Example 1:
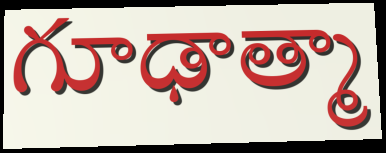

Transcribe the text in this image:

గూఢాత్మా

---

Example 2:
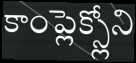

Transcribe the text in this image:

కాంప్లెక్స్లోని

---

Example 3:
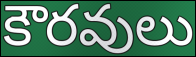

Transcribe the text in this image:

కౌరవులు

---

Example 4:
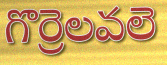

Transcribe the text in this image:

గొర్రెలవలె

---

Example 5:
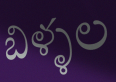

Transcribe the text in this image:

బిళ్ళల